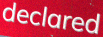
declared